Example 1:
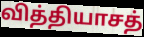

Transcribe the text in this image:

வித்தியாசத்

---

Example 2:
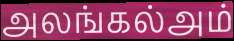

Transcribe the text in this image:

அலங்கல்அம்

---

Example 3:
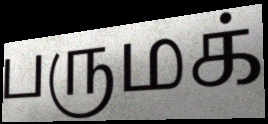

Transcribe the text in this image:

பருமக்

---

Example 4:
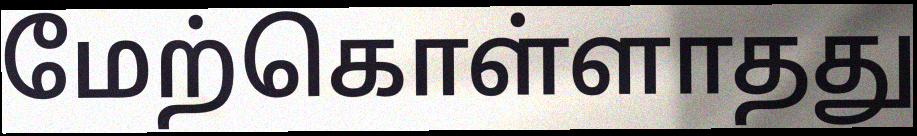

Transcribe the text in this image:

மேற்கொள்ளாதது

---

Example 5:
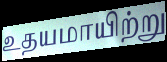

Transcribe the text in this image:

உதயமாயிற்று